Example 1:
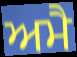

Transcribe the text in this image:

ਅਮੈ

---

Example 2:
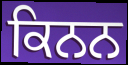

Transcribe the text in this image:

ਕਿਨਨ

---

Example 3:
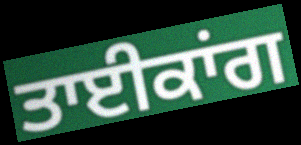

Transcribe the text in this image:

ਤਾਈਕਾਂਗ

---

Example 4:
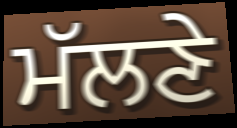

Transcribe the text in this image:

ਮੱਲਣੇ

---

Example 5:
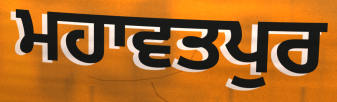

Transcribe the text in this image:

ਮਹਾਵਤਪੁਰ